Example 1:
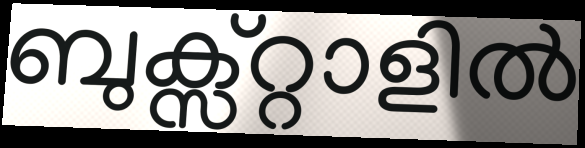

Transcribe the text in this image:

ബുക്സ്റ്റാളിൽ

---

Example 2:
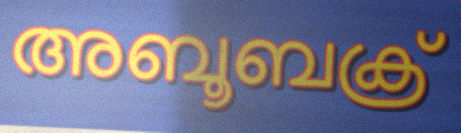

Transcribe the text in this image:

അബൂബക്ര്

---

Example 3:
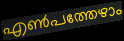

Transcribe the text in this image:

എൺപത്തേഴാം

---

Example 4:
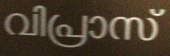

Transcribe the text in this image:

വിപ്രാസ്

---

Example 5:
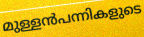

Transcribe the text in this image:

മുള്ളൻപന്നികളുടെ